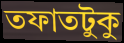
তফাতটুকু